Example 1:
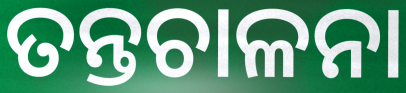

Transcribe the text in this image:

ତନ୍ତଚାଳନା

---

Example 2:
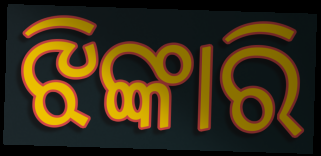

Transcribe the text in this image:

ଝିଙ୍କାରି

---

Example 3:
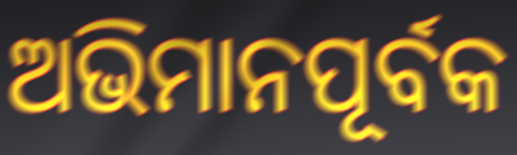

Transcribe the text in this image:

ଅଭିମାନପୂର୍ବକ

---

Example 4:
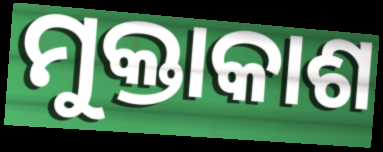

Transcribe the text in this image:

ମୁକ୍ତାକାଶ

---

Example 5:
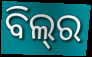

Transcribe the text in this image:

ବିଲ୍‌ର